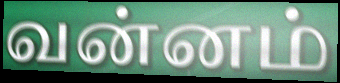
வன்னம்